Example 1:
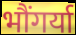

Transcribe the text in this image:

भौंगर्या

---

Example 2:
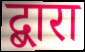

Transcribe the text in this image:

द्बारा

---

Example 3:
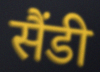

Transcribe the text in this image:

सैंडी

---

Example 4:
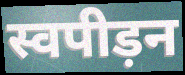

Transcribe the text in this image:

स्वपीड़न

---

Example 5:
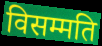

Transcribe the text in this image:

विसम्मति